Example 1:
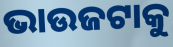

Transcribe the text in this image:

ଭାଉଜଟାକୁ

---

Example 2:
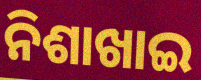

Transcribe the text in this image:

ନିଶାଖାଇ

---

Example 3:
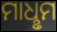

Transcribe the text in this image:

ମାଧୢମ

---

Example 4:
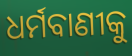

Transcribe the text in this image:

ଧର୍ମବାଣୀକୁ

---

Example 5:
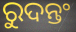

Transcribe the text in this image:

ରୁଦନ୍ତଂ